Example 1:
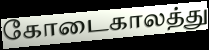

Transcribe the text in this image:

கோடைகாலத்து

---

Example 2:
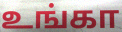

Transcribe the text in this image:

உங்கா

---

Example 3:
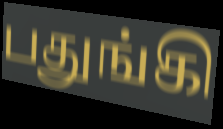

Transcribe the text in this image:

பதுங்கி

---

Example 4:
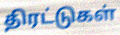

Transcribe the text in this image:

திரட்டுகள்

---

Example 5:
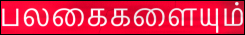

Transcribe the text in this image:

பலகைகளையும்